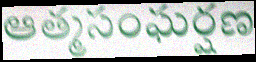
ఆత్మసంఘర్షణ